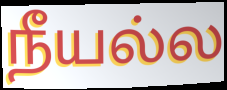
நீயல்ல